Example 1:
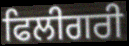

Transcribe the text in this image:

ਫਿਲੀਗਰੀ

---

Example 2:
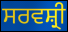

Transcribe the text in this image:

ਸਰਵਸ਼੍ਰੀ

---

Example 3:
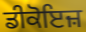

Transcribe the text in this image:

ਡੀਕੋਇਜ਼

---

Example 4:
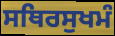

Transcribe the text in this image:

ਸਥਿਰਸੁਖਮੰ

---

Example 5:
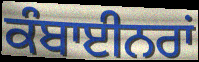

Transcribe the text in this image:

ਕੰਬਾਈਨਰਾਂ